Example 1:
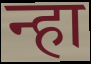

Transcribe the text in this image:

न्हा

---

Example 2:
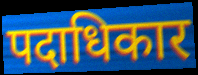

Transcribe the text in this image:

पदाधिकार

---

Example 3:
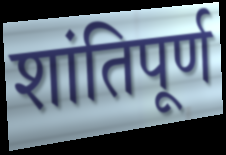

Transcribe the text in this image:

शांतिपूर्ण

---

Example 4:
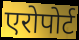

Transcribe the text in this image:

एरोपोर्ट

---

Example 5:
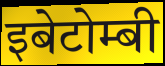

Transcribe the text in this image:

इबेटोम्बी